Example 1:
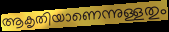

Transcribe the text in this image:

ആകൃതിയാണെന്നുള്ളതും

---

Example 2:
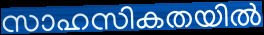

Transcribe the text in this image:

സാഹസികതയിൽ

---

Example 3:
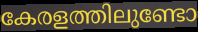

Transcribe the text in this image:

കേരളത്തിലുണ്ടോ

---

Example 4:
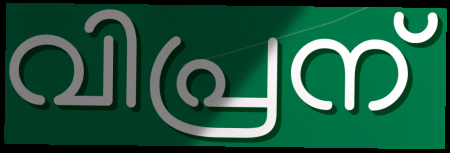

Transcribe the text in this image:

വിപ്രന്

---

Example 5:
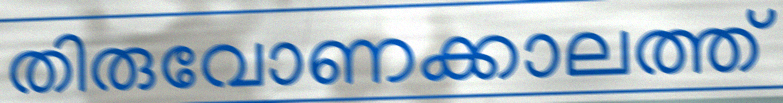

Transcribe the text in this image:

തിരുവോണക്കാലത്ത്